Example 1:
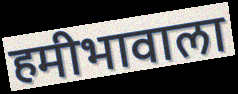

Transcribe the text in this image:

हमीभावाला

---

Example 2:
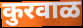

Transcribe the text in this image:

कुरवाळ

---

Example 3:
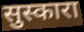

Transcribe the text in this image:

सुस्कारा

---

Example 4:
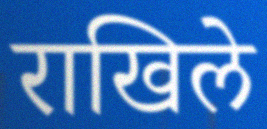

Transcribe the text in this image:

राखिले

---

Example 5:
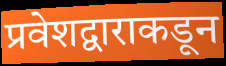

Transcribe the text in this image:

प्रवेशद्वाराकडून